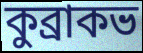
কুব্রাকভ